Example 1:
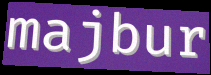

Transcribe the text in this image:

majbur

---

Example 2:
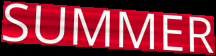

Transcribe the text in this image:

SUMMER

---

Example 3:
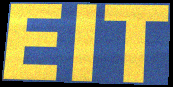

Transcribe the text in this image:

EIT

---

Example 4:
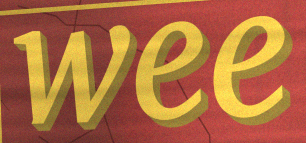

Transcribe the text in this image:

wee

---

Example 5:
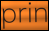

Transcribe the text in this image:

prin